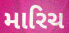
મારિચ